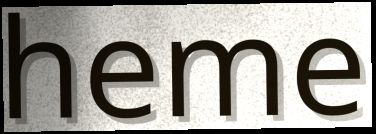
heme